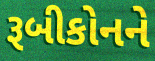
રૂબીકોનને